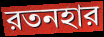
রতনহার